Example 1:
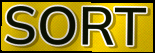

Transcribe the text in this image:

SORT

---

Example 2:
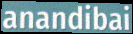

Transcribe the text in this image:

anandibai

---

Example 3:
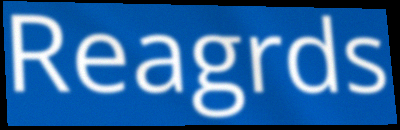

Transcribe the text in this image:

Reagrds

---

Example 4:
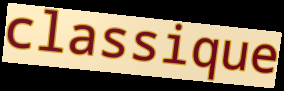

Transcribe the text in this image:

classique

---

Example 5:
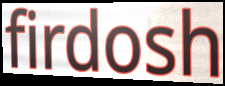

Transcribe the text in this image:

firdosh